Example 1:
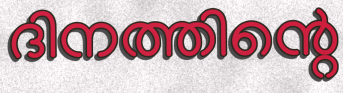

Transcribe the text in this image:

ദിനത്തിന്റെ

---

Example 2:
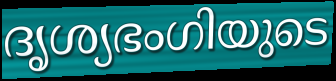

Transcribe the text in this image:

ദൃശ്യഭംഗിയുടെ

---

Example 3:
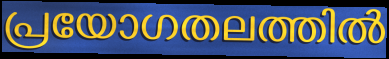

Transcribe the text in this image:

പ്രയോഗതലത്തിൽ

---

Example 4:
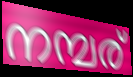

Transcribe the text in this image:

നമ്പര്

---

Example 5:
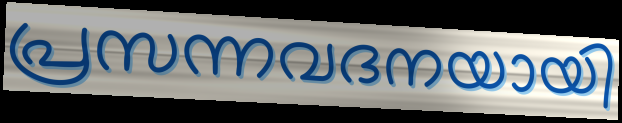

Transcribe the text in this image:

പ്രസന്നവദനയായി